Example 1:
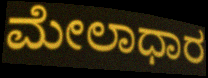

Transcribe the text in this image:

ಮೇಲಾಧಾರ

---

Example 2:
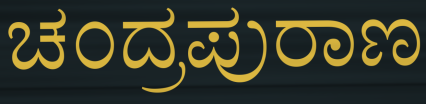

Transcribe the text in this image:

ಚಂದ್ರಪುರಾಣ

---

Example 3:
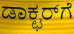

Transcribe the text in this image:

ಡಾಕ್ಟರ್‌ಗೆ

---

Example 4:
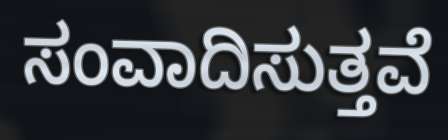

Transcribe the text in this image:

ಸಂವಾದಿಸುತ್ತವೆ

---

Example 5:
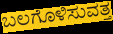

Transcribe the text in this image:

ಬಲಗೊಳಿಸುವತ್ತ